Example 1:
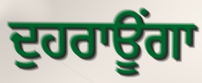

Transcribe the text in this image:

ਦੁਹਰਾਊਂਗਾ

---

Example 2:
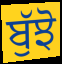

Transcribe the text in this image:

ਬੁੱਝੋ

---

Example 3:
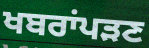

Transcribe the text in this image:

ਖਬਰਾਂਪੜਣ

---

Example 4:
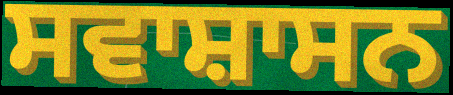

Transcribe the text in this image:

ਸਵਾਸ਼ਾਸਨ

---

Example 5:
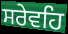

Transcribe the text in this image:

ਸਰੇਵਹਿ